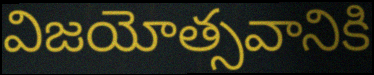
విజయోత్సవానికి